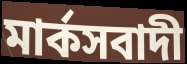
মার্কসবাদী